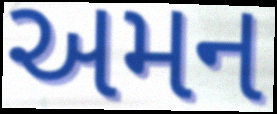
અમન